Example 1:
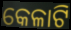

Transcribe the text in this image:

କେଳାଟି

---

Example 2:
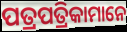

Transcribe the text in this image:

ପତ୍ରପତ୍ରିକାମାନେ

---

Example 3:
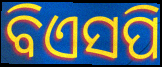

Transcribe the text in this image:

ବିଏସପି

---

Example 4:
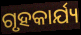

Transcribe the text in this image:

ଗୃହକାର୍ଯ୍ୟ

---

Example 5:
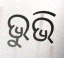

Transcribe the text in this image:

ଭୁଭି